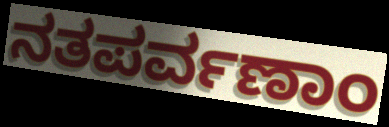
ನತಪರ್ವಣಾಂ